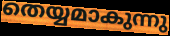
തെയ്യമാകുന്നു